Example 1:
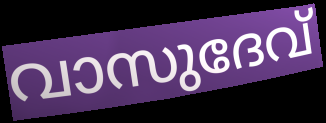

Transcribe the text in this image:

വാസുദേവ്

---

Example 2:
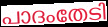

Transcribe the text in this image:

പാദംതേടി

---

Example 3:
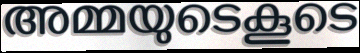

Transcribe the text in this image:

അമ്മയുടെകൂടെ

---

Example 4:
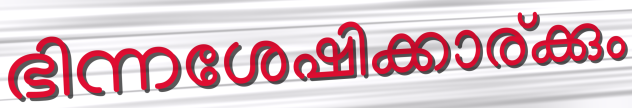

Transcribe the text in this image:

ഭിന്നശേഷിക്കാര്ക്കും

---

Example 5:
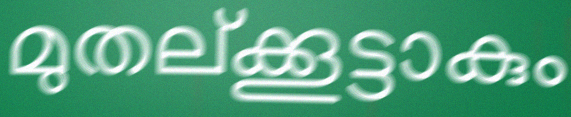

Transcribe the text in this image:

മുതല്ക്കൂട്ടാകും